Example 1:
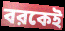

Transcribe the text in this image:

বরকেই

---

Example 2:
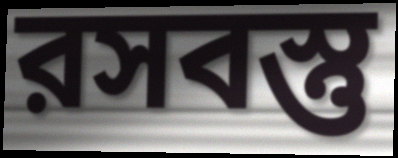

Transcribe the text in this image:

রসবস্তু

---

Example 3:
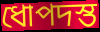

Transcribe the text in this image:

ধোপদস্ত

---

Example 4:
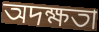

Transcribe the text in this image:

অদক্ষতা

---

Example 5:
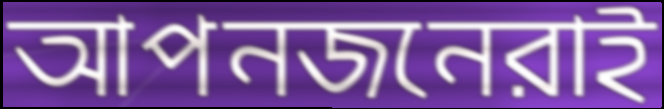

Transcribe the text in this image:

আপনজনেরাই